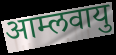
आम्लवायु